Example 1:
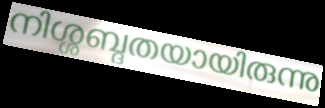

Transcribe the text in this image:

നിശ്ശബ്ദതയായിരുന്നു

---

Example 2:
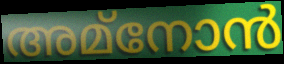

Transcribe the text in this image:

അമ്നോൻ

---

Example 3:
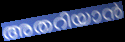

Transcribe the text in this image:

അതറിയാൻ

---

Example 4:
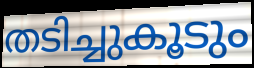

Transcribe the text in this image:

തടിച്ചുകൂടും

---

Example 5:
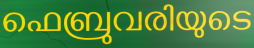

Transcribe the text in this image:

ഫെബ്രുവരിയുടെ